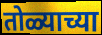
तोळ्याच्या